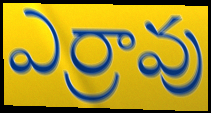
ఎర్రావు